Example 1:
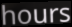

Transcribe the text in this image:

hours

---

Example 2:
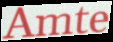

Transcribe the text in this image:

Amte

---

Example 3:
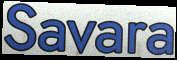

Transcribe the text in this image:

Savara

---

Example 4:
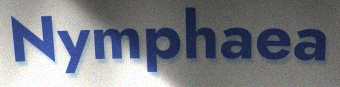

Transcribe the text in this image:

Nymphaea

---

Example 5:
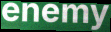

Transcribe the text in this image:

enemy